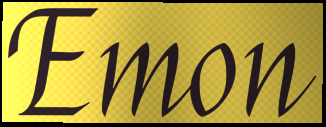
Emon